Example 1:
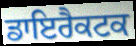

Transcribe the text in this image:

ਡਾਇਰੈਕਟਕ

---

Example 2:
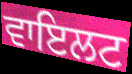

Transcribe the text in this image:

ਵਾਇਲਟ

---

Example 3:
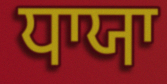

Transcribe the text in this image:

ਧਾਯਾ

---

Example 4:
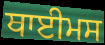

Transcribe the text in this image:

ਥਾਈਮਸ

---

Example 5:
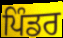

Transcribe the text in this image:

ਪਿੰਡਰ